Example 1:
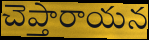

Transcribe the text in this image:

చెప్తారాయన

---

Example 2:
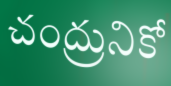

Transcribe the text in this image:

చంద్రునికో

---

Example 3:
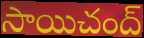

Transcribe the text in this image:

సాయిచంద్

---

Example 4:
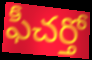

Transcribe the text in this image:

ఫీచర్తో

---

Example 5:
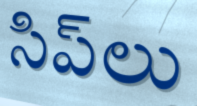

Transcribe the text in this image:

సిప్‌లు